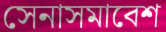
সেনাসমাবেশ